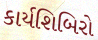
કાર્યશિબિરો